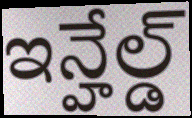
ఇన్హేల్డ్